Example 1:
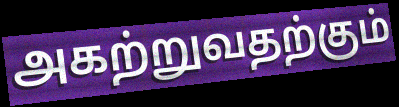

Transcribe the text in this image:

அகற்றுவதற்கும்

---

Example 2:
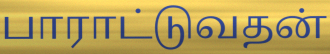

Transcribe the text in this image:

பாராட்டுவதன்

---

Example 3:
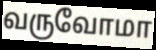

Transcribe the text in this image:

வருவோமா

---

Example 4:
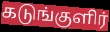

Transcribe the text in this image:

கடுங்குளிர்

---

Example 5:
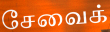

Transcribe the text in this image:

சேவைக்